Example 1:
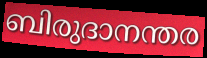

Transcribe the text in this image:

ബിരുദാനന്തര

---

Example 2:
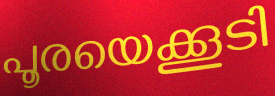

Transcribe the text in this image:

പൂരയെക്കൂടി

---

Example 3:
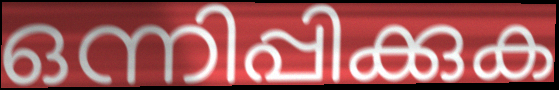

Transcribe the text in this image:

ഒന്നിപ്പിക്കുക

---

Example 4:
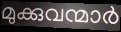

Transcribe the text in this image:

മുക്കുവന്മാർ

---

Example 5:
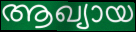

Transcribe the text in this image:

ആഖ്യായ